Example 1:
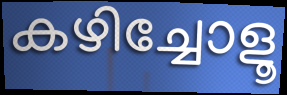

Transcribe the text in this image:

കഴിച്ചോളൂ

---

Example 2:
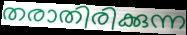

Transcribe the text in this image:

തരാതിരിക്കുന്ന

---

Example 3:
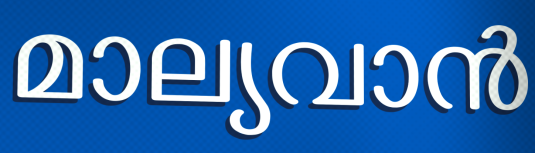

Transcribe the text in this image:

മാല്യവാൻ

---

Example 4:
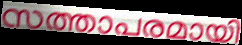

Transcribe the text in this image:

സത്താപരമായി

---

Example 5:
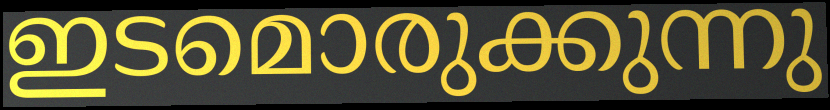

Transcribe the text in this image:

ഇടമൊരുക്കുന്നു